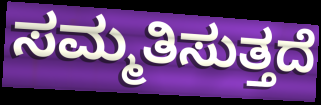
ಸಮ್ಮತಿಸುತ್ತದೆ